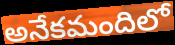
అనేకమందిలో